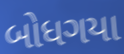
બોધગયા